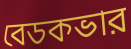
বেডকভার